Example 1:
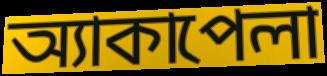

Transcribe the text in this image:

অ্যাকাপেলা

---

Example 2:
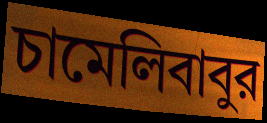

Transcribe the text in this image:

চামেলিবাবুর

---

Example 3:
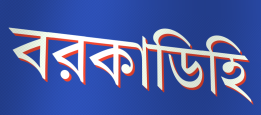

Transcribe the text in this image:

বরকাডিহি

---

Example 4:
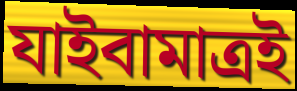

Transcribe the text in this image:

যাইবামাত্রই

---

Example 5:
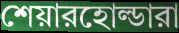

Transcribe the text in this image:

শেয়ারহোল্ডারা